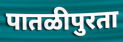
पातळीपुरता